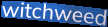
witchweed